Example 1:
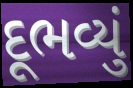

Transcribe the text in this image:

દૂભવ્યું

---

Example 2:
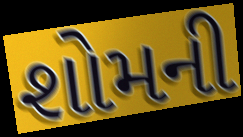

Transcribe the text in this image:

શોમની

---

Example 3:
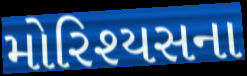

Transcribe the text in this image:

મોરિશ્યસના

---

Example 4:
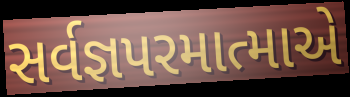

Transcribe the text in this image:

સર્વજ્ઞપરમાત્માએ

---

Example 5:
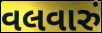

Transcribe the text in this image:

વલવારું